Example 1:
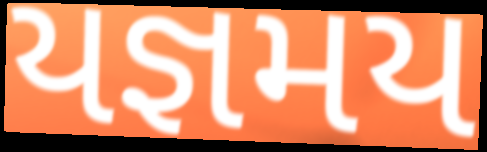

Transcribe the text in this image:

યજ્ઞમય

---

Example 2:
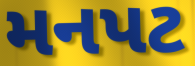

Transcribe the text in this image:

મનપટ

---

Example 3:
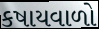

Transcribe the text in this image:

કષાયવાળો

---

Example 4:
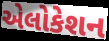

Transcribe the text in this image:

એલોકેશન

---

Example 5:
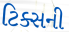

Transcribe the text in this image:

ટિક્સની